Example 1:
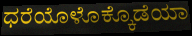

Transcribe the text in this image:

ಧರೆಯೊಳೊಕ್ಕೊಡೆಯಾ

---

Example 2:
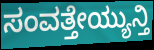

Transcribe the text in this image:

ಸಂವತ್ತೇಯ್ಯುನ್ತಿ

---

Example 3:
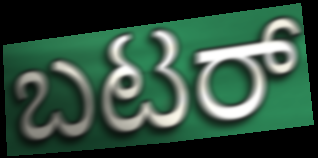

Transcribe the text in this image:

ಬಟರ್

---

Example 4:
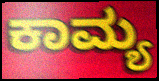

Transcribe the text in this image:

ಕಾಮ್ಯ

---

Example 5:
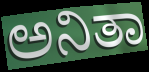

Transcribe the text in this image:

ಅನಿತಾ